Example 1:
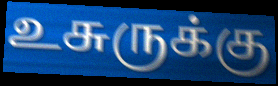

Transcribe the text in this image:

உசுருக்கு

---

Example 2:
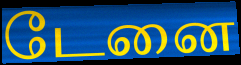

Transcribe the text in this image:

டேனை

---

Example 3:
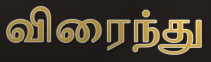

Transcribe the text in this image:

விரைந்து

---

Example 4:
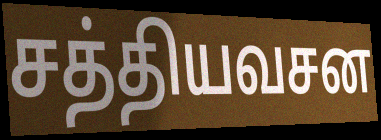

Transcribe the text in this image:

சத்தியவசன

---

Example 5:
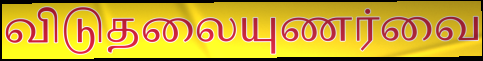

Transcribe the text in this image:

விடுதலையுணர்வை